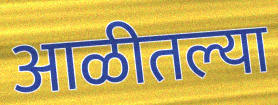
आळीतल्या